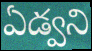
ఏడ్వని